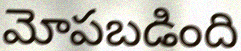
మోపబడింది